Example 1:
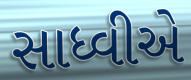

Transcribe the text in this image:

સાધ્વીએ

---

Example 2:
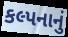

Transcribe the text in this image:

કલ્પનાનું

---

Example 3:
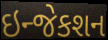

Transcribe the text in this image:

ઇન્જેકશન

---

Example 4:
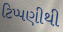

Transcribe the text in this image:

ટિપ્પણીથી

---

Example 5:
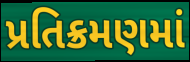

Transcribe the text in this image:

પ્રતિક્રમણમાં